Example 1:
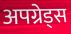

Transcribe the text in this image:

अपग्रेड्स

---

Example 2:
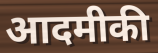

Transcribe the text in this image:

आदमीकी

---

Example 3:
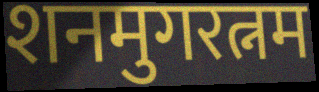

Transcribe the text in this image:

शनमुगरत्नम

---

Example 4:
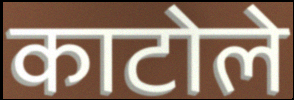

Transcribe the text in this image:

काटोले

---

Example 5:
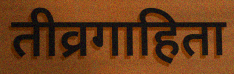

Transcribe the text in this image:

तीव्रगाहिता